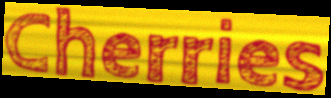
Cherries